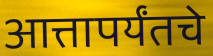
आत्तापर्यंतचे